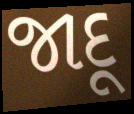
જાદૂ